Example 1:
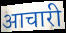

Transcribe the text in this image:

आचारी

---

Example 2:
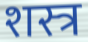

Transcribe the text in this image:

शस्त्र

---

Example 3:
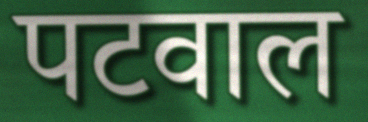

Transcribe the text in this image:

पटवाल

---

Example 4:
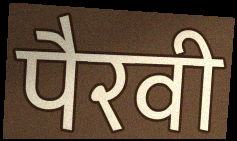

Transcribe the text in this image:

पैरवी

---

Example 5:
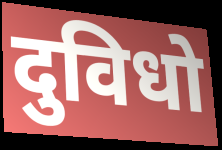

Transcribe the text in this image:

दुविधो